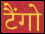
टैंगो